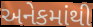
અનેકમાંથી